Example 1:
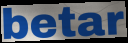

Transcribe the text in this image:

betar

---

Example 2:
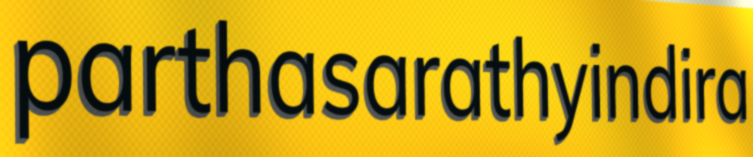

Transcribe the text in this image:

parthasarathyindira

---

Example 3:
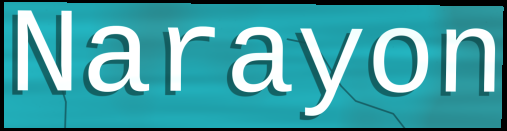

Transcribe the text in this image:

Narayon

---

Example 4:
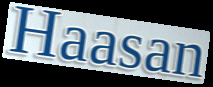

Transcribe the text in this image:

Haasan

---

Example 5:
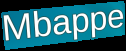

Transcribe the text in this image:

Mbappe